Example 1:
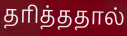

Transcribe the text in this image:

தரித்ததால்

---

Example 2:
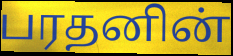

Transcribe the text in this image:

பரதனின்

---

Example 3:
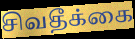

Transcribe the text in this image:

சிவதீக்கை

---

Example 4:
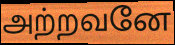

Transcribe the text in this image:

அற்றவனே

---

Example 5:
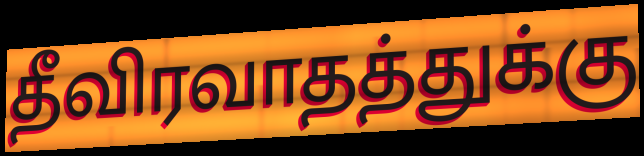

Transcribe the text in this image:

தீவிரவாதத்துக்கு